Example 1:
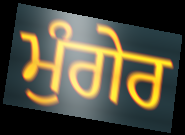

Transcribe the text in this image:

ਮੁੰਗੇਰ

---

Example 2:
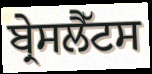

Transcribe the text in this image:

ਬ੍ਰੇਸਲੈੱਟਸ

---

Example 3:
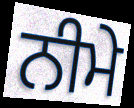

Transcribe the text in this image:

ਨੀਮੇ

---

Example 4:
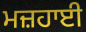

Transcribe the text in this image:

ਮਜ਼ਹਾਈ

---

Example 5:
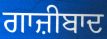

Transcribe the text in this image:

ਗਾਜ਼ੀਬਾਦ